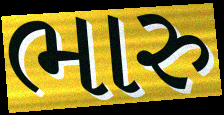
ભારુ